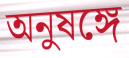
অনুষঙ্গে